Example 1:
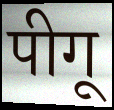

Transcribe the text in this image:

पीगू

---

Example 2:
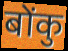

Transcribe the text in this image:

बोंकु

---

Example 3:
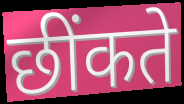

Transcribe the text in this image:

छींकते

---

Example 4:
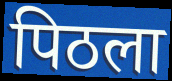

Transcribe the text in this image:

पिठला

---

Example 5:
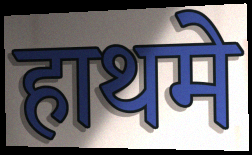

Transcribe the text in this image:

हाथमे